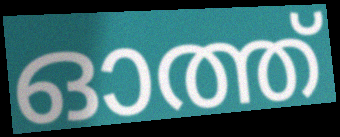
ഓത്ത്